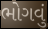
ભોગવું